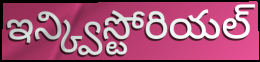
ఇన్క్విస్టోరియల్